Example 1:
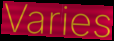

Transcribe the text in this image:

Varies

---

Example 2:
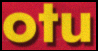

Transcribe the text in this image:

otu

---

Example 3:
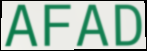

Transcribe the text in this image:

AFAD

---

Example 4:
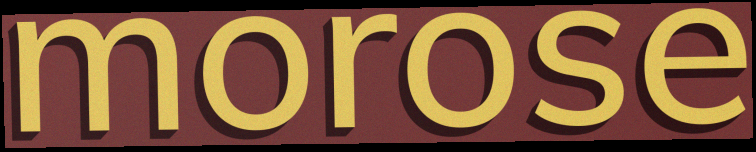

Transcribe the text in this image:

morose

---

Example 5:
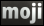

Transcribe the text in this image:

moji